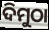
ଦିମୁଠା